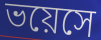
ভয়েসে